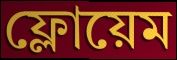
ফ্লোয়েম